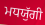
ਮਧਯੁੱਗੀ